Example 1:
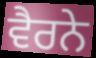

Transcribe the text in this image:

ਵੈਰਨੇ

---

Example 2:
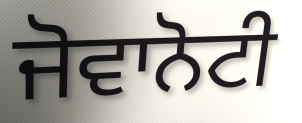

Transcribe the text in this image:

ਜੋਵਾਨੋਟੀ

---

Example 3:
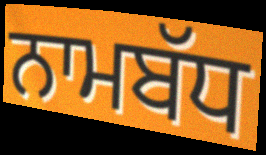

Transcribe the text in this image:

ਨਾਮਬੱਧ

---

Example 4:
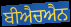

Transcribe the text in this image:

ਬੀਐਚਐਨ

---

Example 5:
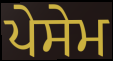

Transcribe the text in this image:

ਪੇਸੇਮ